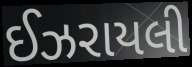
ઈઝરાયલી